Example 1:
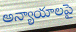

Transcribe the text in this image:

అన్యాయాలపై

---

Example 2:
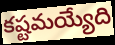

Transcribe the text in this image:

కష్టమయ్యేది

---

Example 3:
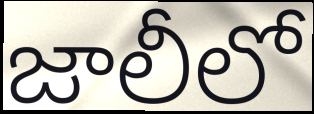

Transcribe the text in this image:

జాలీలో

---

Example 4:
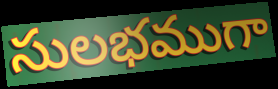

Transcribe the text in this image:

సులభముగా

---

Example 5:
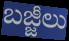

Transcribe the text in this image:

బజ్జీలు